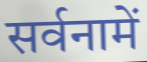
सर्वनामें